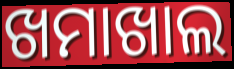
ଖମାଖାଲ